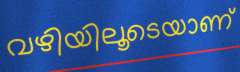
വഴിയിലൂടെയാണ്